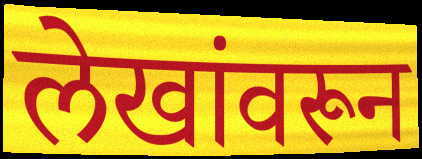
लेखांवरून